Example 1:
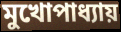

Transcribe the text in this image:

মুখোপাধ্যায়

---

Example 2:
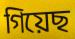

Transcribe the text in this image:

গিয়েছ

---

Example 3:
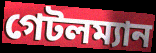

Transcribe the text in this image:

গেটলম্যান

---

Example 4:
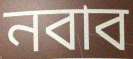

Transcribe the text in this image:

নবাব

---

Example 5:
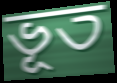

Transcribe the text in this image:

ভূত